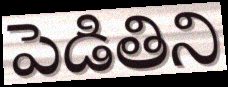
పెడితిని